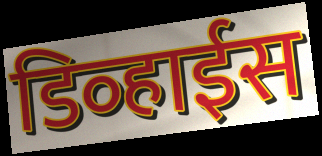
डिव्हाईस